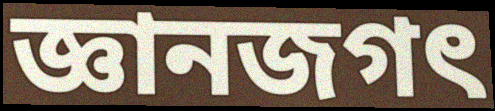
জ্ঞানজগৎ